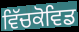
ਵਿੱਚਕੋਵਿਡ